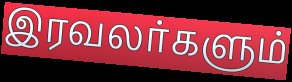
இரவலர்களும்